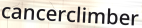
cancerclimber